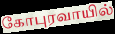
கோபுரவாயில்